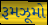
રૂમઝૂમો